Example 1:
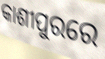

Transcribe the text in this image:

କାଶୀପୁରରେ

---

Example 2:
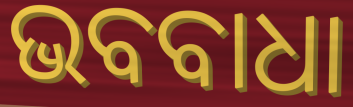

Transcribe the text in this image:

ଭବବାଧା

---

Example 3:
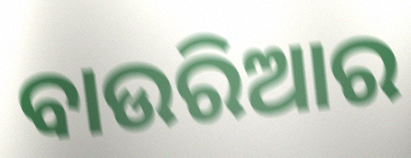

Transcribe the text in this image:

ବାଉରିଆର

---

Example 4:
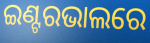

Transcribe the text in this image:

ଇଣ୍ଟରଭାଲରେ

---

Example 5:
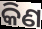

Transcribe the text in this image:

କିଣ